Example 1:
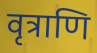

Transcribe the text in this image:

वृत्राणि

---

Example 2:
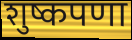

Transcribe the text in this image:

शुष्कपणा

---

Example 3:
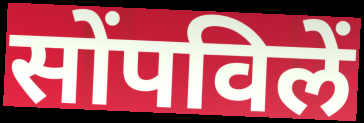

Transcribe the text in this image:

सोंपविलें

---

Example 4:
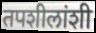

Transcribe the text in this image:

तपशीलांशी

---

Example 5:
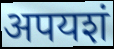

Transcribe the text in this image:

अपयशं